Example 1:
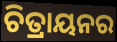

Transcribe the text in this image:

ଚିତ୍ରାୟନର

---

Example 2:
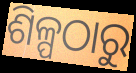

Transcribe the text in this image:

ଶିଳ୍ପଠାରୁ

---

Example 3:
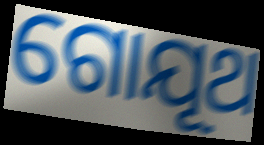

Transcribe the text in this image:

ଗୋଯୂଥ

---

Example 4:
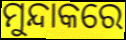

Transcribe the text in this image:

ମୁନ୍ଦାକରେ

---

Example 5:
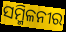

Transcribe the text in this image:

ସମ୍ମିଳନୀର